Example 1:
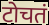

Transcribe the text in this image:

टोचतं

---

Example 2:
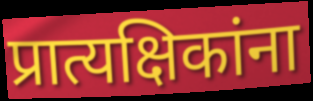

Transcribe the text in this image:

प्रात्यक्षिकांना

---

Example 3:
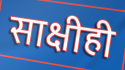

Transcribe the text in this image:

साक्षीही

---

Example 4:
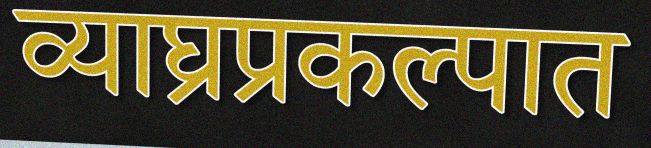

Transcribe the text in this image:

व्याघ्रप्रकल्पात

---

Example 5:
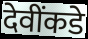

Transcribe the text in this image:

देवींकडे